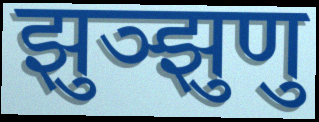
झुञ्झुणु